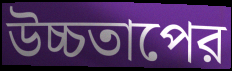
উচ্চতাপের